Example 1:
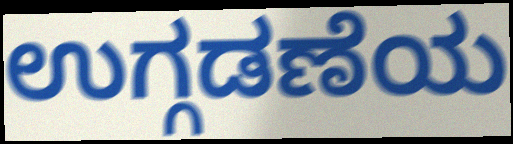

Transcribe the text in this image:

ಉಗ್ಗಡಣೆಯ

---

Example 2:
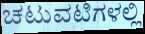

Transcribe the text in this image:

ಚಟುವಟಿಗಳಲ್ಲಿ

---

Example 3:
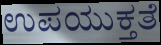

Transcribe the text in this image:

ಉಪಯುಕ್ತತೆ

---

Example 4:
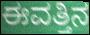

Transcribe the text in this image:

ಈವತ್ತಿನ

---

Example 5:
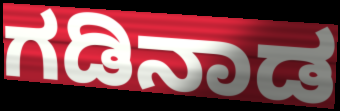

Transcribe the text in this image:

ಗಡಿನಾಡ